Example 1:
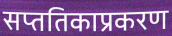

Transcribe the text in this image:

सप्ततिकाप्रकरण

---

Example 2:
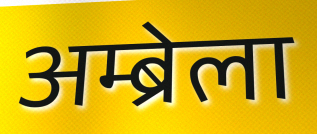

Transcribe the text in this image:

अम्‍ब्रेला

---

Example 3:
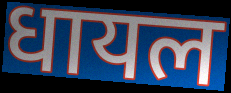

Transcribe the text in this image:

धायल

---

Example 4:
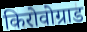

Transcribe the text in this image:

किरोवोग्राड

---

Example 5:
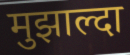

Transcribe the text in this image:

मुझाल्दा